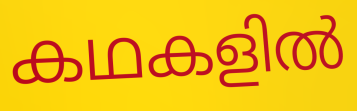
കഥകളിൽ